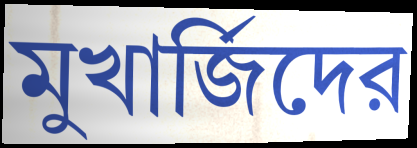
মুখার্জিদের